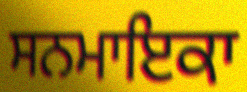
ਸਨਮਾਇਕਾ